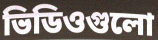
ভিডিওগুলো